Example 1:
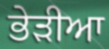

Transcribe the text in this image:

ਭੇੜੀਆ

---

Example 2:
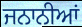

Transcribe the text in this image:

ਜਨਾਨੀਆਂ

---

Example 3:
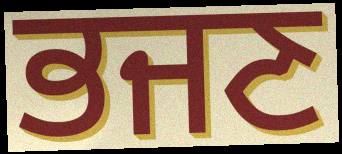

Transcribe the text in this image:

ਭਜਣ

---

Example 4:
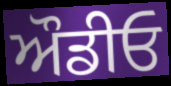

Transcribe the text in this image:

ਔਡੀਓ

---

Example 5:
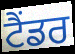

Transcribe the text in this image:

ਟੈਂਡਰ